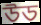
উড